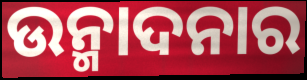
ଉନ୍ମାଦନାର